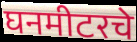
घनमीटरचे